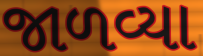
જાળવ્યા